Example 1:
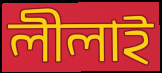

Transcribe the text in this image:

লীলাই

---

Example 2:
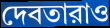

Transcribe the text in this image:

দেবতারাও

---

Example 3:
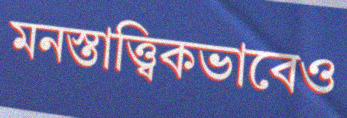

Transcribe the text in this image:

মনস্তাত্ত্বিকভাবেও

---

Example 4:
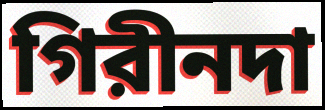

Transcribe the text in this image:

গিরীনদা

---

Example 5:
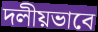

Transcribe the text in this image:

দলীয়ভাবে